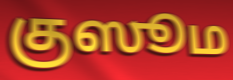
குஸூம